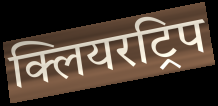
क्लियरट्रिप